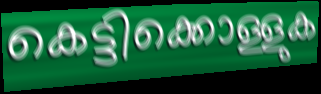
കെട്ടിക്കൊള്ളുക